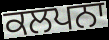
ਕਲਪਨਾ